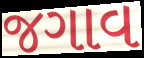
જગાવ